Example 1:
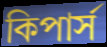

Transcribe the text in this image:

কিপার্স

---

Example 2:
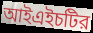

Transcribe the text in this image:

আইএইচটির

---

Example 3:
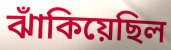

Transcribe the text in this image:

ঝাঁকিয়েছিল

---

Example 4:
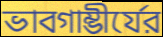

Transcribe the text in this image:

ভাবগাম্ভীর্যের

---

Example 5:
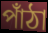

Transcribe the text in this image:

পাঁঠা